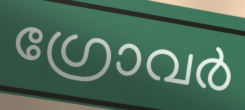
ഗ്രോവർ